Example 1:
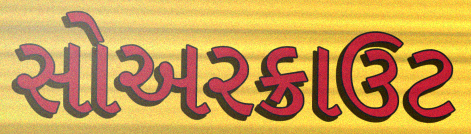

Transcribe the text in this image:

સોઅરક્રાઉટ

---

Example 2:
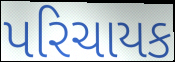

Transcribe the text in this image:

પરિચાયક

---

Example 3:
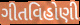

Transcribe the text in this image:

ગીતવિહોણી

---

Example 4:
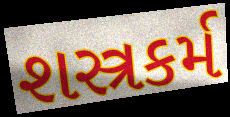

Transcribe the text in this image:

શસ્ત્રકર્મ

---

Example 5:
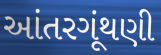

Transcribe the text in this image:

આંતરગૂંથણી